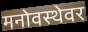
मनोवस्थेवर